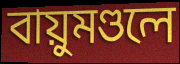
বায়ুমণ্ডলে